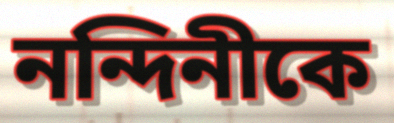
নন্দিনীকে